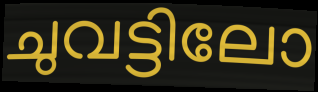
ചുവട്ടിലോ